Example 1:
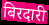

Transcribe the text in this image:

बिरदारी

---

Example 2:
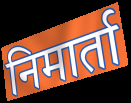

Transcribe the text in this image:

निमार्ता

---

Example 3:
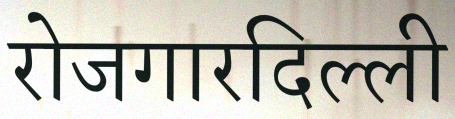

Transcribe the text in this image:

रोजगारदिल्ली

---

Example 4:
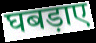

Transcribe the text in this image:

घबड़ाए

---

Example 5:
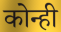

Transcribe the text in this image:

कोन्ही